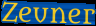
Zeuner